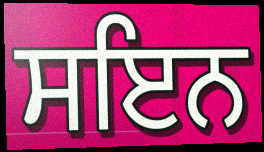
ਸਇਨ